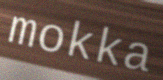
mokka